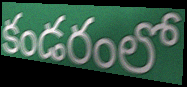
కండరంలో